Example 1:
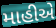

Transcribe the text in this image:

માહીએ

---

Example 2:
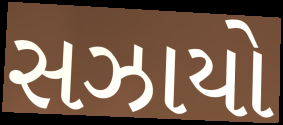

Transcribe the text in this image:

સઝાયો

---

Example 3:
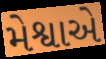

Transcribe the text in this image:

મેશ્વાએ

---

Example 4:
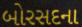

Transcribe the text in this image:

બોરસદના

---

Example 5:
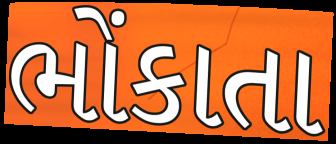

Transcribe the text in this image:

ભોંકાતા